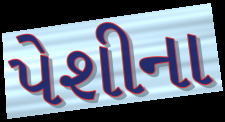
પેશીના